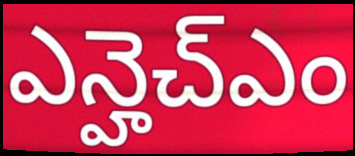
ఎన్హెచ్ఎం